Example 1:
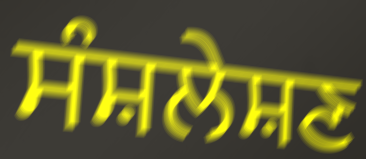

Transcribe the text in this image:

ਸੰਸ਼ਲੇਸ਼ਣ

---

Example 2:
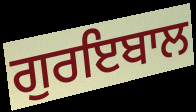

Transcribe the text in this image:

ਗੁਰਇਬਾਲ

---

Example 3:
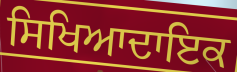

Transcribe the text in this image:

ਸਿਖਿਆਦਾਇਕ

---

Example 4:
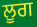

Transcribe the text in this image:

ਲੂਗ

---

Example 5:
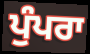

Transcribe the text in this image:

ਪੁੰਪਰਾ